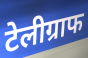
टेलीग्राफ